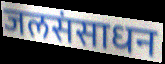
जलसंसाधन